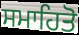
ਸਮਾਹਿਤੋ